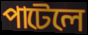
পাটেলে